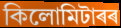
কিলোমিটাৰৰ